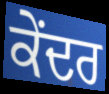
ਕੇੰਦਰ